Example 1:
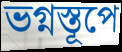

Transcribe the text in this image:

ভগ্নস্তূপে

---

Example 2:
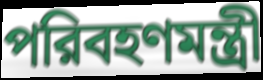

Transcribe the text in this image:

পরিবহণমন্ত্রী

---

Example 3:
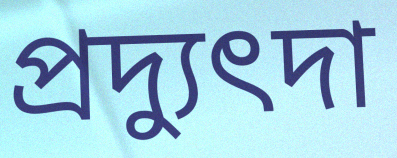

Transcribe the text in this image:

প্রদ্যুৎদা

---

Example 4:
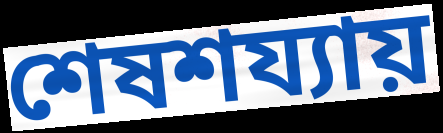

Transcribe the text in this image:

শেষশয্যায়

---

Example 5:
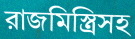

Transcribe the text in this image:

রাজমিস্ত্রিসহ